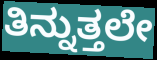
ತಿನ್ನುತ್ತಲೇ